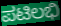
ಪಟಿಲಭಿ